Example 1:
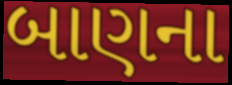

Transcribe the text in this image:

બાણના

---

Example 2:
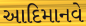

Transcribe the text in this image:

આદિમાનવે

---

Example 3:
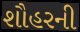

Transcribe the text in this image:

શૌહરની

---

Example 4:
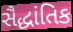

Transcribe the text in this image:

સૈદ્ધાંતિક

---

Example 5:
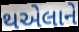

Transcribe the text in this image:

થએલાને